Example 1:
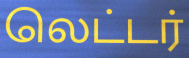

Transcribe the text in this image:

லெட்டர்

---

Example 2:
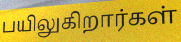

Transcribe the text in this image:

பயிலுகிறார்கள்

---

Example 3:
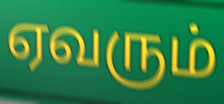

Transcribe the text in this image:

ஏவரும்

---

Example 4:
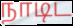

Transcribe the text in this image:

நாடிட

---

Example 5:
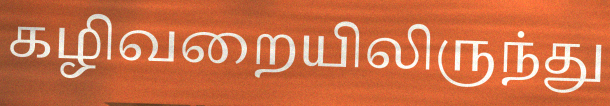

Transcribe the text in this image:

கழிவறையிலிருந்து